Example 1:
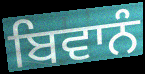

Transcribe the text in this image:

ਬਿਵਾਨੰ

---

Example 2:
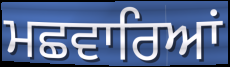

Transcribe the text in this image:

ਮਛਵਾਰਿਆਂ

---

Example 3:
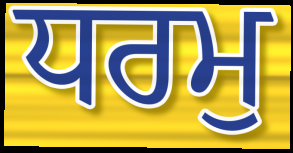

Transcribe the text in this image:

ਧਰਮੁ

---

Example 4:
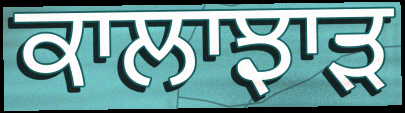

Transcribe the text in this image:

ਕਾਲਾਝਾਡ਼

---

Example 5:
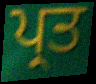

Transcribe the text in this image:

ਪ੍ਰਤ